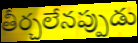
తీర్చలేనప్పుడు